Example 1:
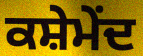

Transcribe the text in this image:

ਕਸ਼ੇਮੇਂਦ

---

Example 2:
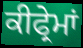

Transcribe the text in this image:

ਕੀਫ੍ਰੇਮਾਂ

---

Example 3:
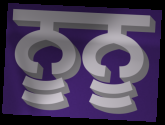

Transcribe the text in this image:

ਨੂਨੂ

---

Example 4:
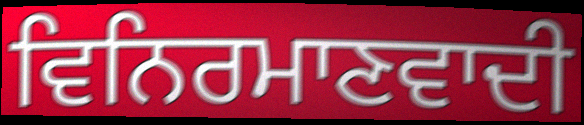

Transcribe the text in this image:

ਵਿਨਿਰਮਾਣਵਾਦੀ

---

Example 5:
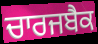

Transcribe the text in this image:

ਚਾਰਜਬੈਕ